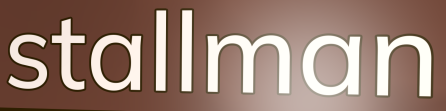
stallman